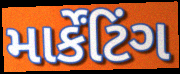
માર્કેંટિંગ